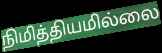
நிமித்தியமில்லை